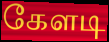
கேளடி